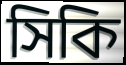
সিকি